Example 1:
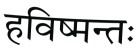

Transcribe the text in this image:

हविष्मन्तः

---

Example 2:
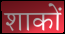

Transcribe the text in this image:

शाकों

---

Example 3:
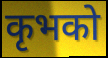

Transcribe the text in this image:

कृभको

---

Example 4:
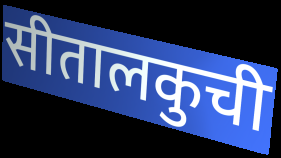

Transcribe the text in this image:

सीतालकुची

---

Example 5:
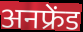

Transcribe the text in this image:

अनफ्रेंड